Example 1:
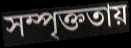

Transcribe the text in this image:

সম্পৃক্ততায়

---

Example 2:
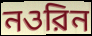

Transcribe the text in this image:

নওরিন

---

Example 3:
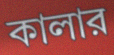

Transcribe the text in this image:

কালার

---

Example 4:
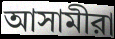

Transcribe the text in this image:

আসামীরা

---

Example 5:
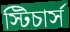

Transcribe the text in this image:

স্টিচার্স